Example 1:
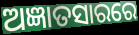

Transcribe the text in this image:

ଅଜ୍ଞାତସାରରେ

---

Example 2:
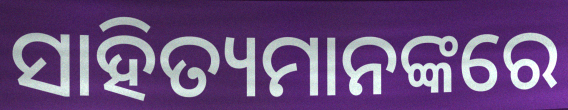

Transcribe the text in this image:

ସାହିତ୍ୟମାନଙ୍କରେ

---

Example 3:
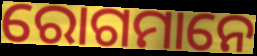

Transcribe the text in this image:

ରୋଗମାନେ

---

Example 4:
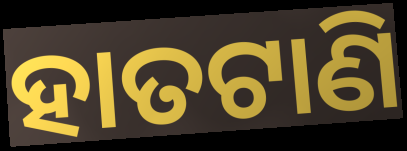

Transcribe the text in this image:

ହାତଟାଣି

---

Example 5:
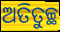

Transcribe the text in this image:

ଅତିତୁଚ୍ଛ